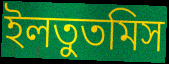
ইলতুতমিস